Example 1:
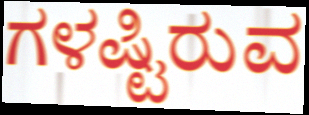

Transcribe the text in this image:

ಗಳಷ್ಟಿರುವ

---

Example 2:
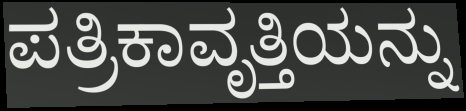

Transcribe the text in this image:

ಪತ್ರಿಕಾವೃತ್ತಿಯನ್ನು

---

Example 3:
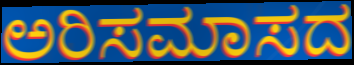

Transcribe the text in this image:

ಅರಿಸಮಾಸದ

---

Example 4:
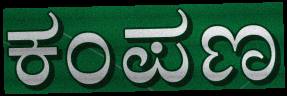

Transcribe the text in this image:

ಕಂಪಣ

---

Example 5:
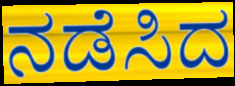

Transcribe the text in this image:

ನಡೆಸಿದ